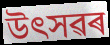
উৎসৱৰ